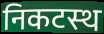
निकटस्थ